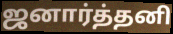
ஜனார்த்தனி